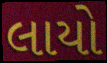
લાયો